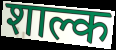
शाल्क